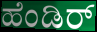
ಹೆಂಡಿರ್